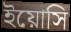
ইয়োসি